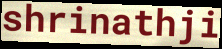
shrinathji